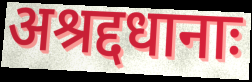
अश्रद्दधानाः